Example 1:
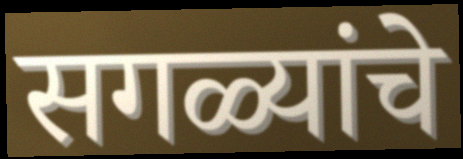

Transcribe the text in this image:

सगळ्यांचे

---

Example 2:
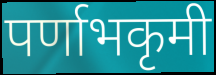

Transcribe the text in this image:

पर्णाभकृमी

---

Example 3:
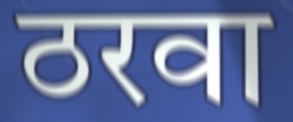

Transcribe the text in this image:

ठरवा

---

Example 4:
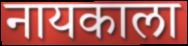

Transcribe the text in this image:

नायकाला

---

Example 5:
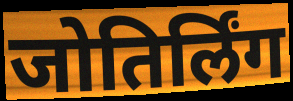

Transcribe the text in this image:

जोतिर्लिंग